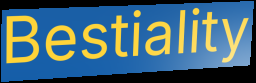
Bestiality